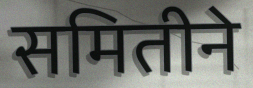
समितीने